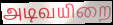
அடிவயிறை